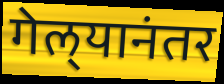
गेल्यानंतर